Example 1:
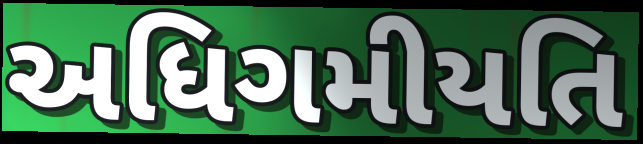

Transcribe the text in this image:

અધિગમીયતિ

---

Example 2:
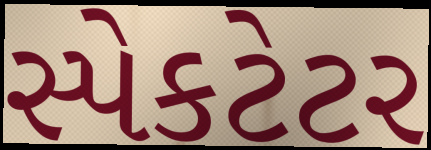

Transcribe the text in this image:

સ્પેકટેટર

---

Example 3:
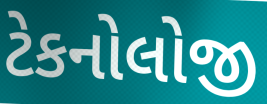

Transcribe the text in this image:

ટેકનોલોજી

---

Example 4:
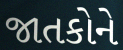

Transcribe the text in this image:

જાતકોને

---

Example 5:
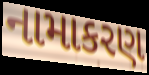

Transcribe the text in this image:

નામાકરણ